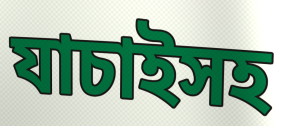
যাচাইসহ